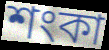
শংকা